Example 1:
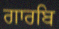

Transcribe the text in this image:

ਗਾਰਬਿ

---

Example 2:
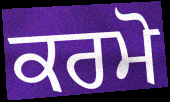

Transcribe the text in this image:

ਕਰਮੋ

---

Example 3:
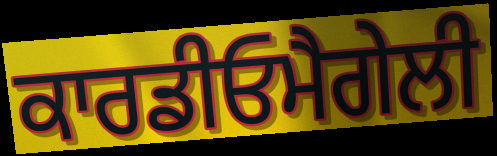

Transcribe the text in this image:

ਕਾਰਡੀਓਮੈਗੇਲੀ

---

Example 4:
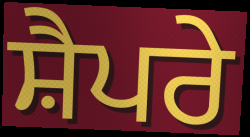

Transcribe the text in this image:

ਸ਼ੈਪਰੇ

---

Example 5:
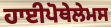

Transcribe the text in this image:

ਹਾਈਪੋਥੇਲੇਮਸ